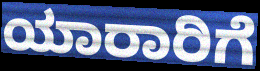
ಯಾರಾರಿಗೆ